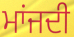
ਮਾਂਜਦੀ